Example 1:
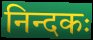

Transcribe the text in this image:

निन्दकः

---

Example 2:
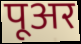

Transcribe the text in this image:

पूअर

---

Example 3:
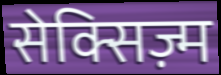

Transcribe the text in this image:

सेक्सिज़्म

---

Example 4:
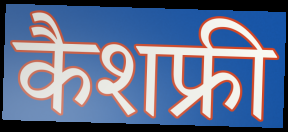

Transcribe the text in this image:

कैशफ्री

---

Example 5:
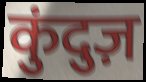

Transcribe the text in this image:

कुंदुज़